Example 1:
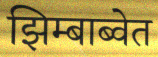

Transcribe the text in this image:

झिम्बाब्वेत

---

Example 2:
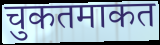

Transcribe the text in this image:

चुकतमाकत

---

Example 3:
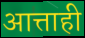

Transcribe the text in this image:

आत्ताही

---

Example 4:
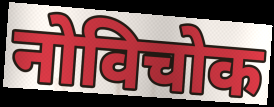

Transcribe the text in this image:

नोविचोक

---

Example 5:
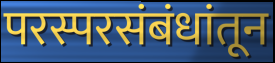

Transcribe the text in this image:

परस्परसंबंधांतून